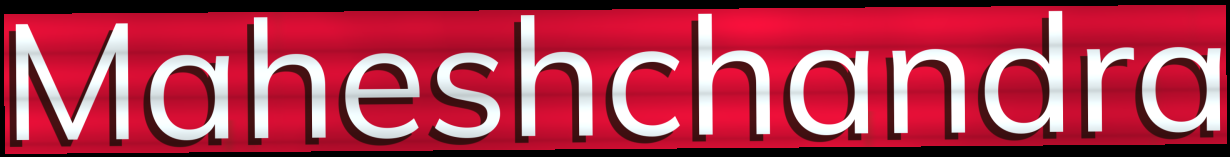
Maheshchandra